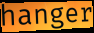
hanger